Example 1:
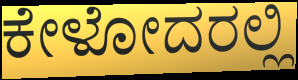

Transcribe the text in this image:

ಕೇಳೋದರಲ್ಲಿ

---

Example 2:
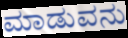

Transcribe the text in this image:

ಮಾಡುವನು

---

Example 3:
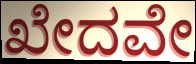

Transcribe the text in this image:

ಖೇದವೇ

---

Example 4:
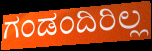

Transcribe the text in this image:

ಗಂಡಂದಿರಿಲ್ಲ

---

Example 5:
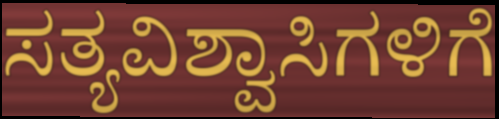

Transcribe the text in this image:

ಸತ್ಯವಿಶ್ವಾಸಿಗಳಿಗೆ